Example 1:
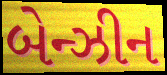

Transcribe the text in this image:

બેન્ઝીન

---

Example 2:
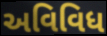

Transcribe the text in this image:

અવિવિધ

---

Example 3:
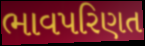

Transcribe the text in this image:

ભાવપરિણત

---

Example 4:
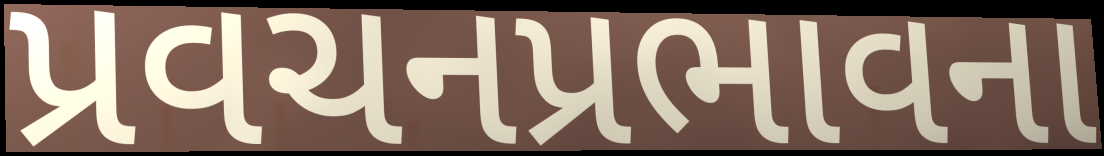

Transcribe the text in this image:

પ્રવચનપ્રભાવના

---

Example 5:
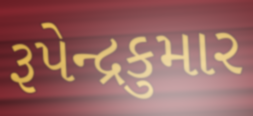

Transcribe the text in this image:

રૂપેન્દ્રકુમાર